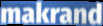
makrand